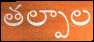
తల్పాల